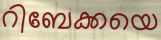
റിബേക്കയെ